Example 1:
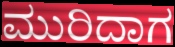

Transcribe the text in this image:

ಮುರಿದಾಗ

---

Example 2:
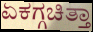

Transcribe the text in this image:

ಏಕಗ್ಗಚಿತ್ತಾ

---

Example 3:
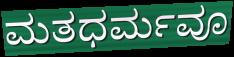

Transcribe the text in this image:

ಮತಧರ್ಮವೂ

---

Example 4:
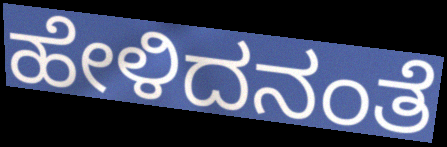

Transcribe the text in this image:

ಹೇಳಿದನಂತೆ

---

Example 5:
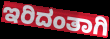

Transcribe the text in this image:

ಇರಿದಂತಾಗಿ